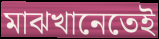
মাঝখানেতেই